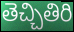
తెచ్చితిరి